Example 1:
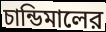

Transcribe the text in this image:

চান্ডিমালের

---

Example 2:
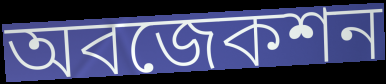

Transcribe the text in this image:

অবজেকশন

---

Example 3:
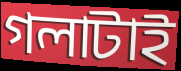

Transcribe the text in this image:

গলাটাই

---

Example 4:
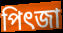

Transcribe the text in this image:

পিৎজা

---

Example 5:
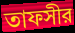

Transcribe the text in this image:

তাফসীর